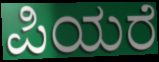
ಪಿಯರೆ